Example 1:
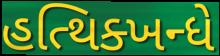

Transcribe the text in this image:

હત્થિક્ખન્ધે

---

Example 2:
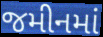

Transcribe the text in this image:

જમીનમાં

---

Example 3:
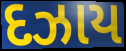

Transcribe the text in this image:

દઝાય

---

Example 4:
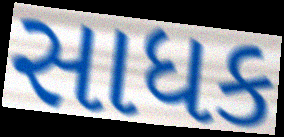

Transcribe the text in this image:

સાધક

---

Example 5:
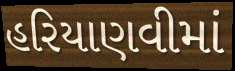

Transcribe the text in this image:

હરિયાણવીમાં